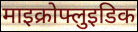
माइक्रोफ्लुइडिक